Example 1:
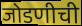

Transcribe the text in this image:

जोडणीची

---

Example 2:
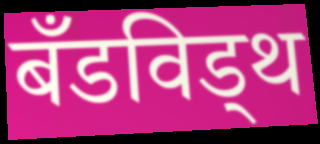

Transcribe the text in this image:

बँडविड्थ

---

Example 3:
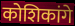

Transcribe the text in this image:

कोशिकांगे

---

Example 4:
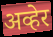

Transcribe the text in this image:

अव्हेर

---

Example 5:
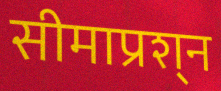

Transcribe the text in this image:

सीमाप्रश्न